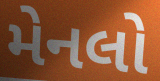
મેનલો